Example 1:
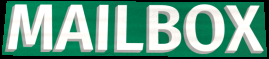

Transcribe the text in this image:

MAILBOX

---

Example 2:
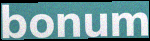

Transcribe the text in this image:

bonum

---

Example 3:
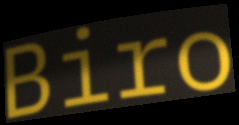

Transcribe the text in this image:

Biro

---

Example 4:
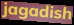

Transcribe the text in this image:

jagadish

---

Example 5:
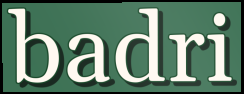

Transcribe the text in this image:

badri